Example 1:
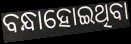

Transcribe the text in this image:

ବନ୍ଧାହୋଇଥିବା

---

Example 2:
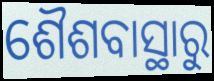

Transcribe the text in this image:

ଶୈଶବାସ୍ଥାରୁ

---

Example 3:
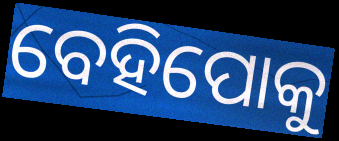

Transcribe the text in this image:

ବେହିପୋକୁ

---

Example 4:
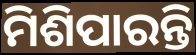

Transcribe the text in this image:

ମିଶିପାରନ୍ତି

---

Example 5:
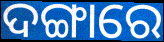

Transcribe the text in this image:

ଦଙ୍ଗାରେ